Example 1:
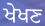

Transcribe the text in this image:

ਖੇਖਣ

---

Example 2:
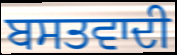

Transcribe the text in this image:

ਬਸਤਵਾਦੀ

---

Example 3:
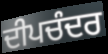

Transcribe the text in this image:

ਦੀਪਚੰਦਰ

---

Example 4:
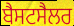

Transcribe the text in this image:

ਬੈਸਟਸੈਲਰ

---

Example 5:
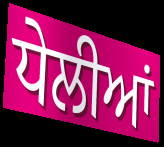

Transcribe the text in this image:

ਧੇਲੀਆਂ